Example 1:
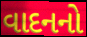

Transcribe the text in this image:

વાદનનો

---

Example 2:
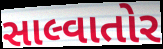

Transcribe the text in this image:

સાલ્વાતોર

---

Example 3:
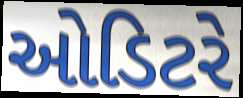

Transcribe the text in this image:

ઓડિટરે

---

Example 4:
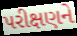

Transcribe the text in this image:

પરીક્ષણને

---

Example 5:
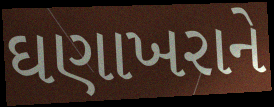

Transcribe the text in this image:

ઘણાખરાને